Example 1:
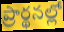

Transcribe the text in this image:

ప్రార్థనల్లో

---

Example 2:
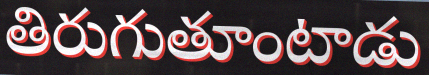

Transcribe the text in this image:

తిరుగుతూంటాడు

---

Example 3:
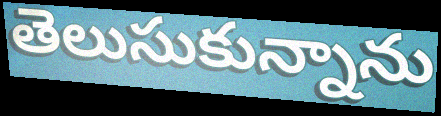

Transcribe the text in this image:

తెలుసుకున్నాను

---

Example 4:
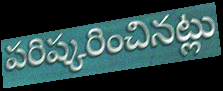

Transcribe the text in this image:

పరిష్కరించినట్లు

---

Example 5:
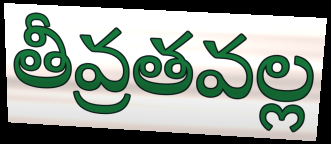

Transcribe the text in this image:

తీవ్రతవల్ల